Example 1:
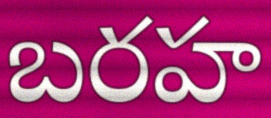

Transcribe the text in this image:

బరహ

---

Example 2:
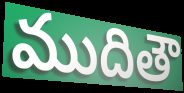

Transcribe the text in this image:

ముదితౌ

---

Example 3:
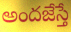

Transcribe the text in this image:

అందజేస్తే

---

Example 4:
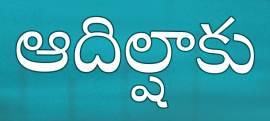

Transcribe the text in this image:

ఆదిల్షాకు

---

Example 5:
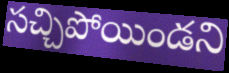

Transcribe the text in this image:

సచ్చిపోయిండని